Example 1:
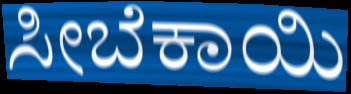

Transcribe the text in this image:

ಸೀಬೆಕಾಯಿ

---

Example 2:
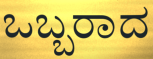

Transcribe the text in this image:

ಒಬ್ಬರಾದ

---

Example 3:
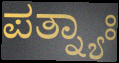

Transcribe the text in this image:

ಪತ್ನ್ಯಾಃ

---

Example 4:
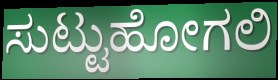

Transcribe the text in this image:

ಸುಟ್ಟುಹೋಗಲಿ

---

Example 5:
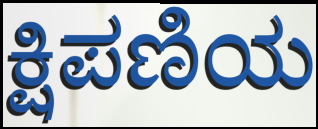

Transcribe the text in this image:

ಕ್ಷಿಪಣಿಯ